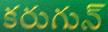
కరుగున్